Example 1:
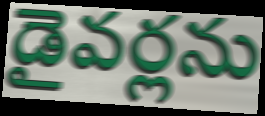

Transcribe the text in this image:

డైవర్లను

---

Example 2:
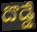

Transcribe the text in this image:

దొడ్డే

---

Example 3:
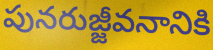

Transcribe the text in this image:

పునరుజ్జీవనానికి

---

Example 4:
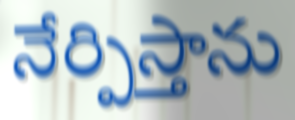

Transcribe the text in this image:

నేర్పిస్తాను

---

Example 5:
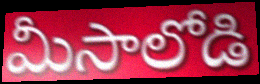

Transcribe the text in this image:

మీసాలోడి